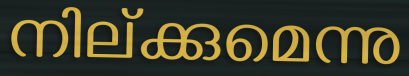
നില്ക്കുമെന്നു